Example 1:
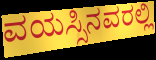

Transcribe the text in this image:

ವಯಸ್ಸಿನವರಲ್ಲಿ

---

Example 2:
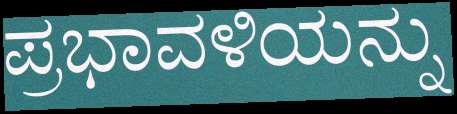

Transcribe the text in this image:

ಪ್ರಭಾವಳಿಯನ್ನು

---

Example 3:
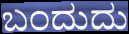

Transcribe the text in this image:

ಬಂದುದು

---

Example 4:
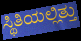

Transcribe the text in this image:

ಸ್ಥಿತಿಯಲ್ಲಿತ್ತು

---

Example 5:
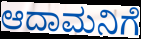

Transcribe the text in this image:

ಆದಾಮನಿಗೆ